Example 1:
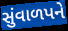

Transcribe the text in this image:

સુંવાળપને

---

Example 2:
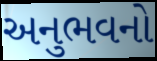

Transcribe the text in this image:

અનુભવનો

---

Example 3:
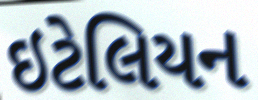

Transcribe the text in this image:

ઇટેલિયન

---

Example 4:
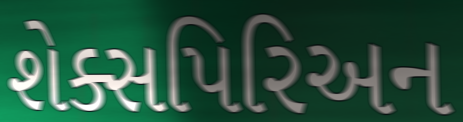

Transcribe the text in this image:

શેક્સપિરિઅન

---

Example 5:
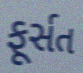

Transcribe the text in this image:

ફૂર્સત